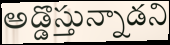
అడ్డొస్తున్నాడని